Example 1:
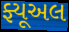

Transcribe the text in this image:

ફ્યૂઅલ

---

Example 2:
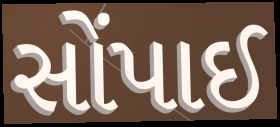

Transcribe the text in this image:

સોંપાઈ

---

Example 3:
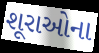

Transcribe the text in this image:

શૂરાઓના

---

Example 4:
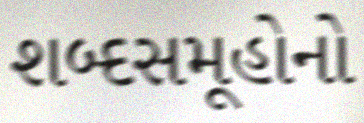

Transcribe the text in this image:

શબ્દસમૂહોનો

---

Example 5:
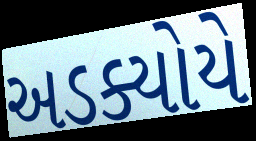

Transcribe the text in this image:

અડક્યોયે